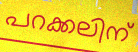
പറക്കലിന്